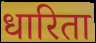
धारिता